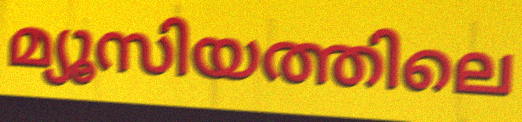
മ്യൂസിയത്തിലെ